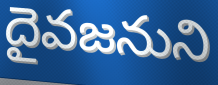
దైవజనుని